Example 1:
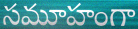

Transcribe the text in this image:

సమూహంగా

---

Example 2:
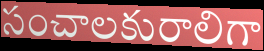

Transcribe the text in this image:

సంచాలకురాలిగా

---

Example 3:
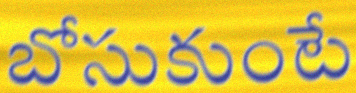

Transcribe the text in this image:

బోసుకుంటే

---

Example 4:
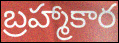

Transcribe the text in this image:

బ్రహ్మాకార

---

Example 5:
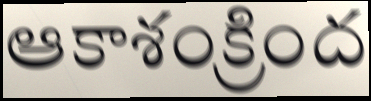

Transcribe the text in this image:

ఆకాశంక్రింద